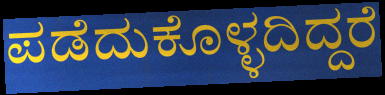
ಪಡೆದುಕೊಳ್ಳದಿದ್ದರೆ